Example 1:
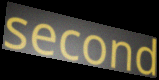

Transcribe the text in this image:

second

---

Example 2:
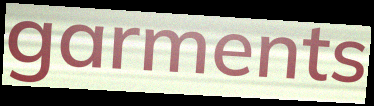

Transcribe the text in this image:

garments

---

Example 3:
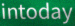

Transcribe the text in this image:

intoday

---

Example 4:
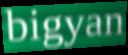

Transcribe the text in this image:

bigyan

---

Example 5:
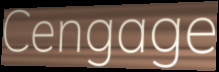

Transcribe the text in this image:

Cengage